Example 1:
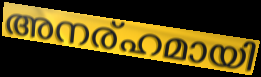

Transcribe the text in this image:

അനര്ഹമായി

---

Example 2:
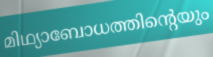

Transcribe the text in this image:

മിഥ്യാബോധത്തിന്റെയും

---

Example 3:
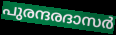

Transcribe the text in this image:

പുരന്ദരദാസർ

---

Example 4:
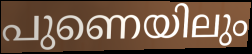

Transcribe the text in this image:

പുണെയിലും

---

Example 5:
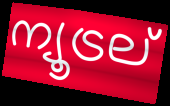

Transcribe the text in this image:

ന്യൂട്രല്